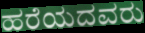
ಹರೆಯದವರು